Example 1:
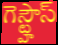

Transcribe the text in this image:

గెస్ట్హౌస్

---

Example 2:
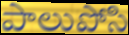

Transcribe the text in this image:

పాలుపోసి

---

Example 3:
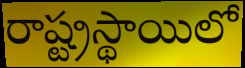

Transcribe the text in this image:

రాష్ట్రస్థాయిలో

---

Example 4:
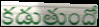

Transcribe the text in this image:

కడుతుందో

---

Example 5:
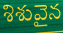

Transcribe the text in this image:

శిశువైన